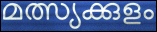
മത്സ്യക്കുളം